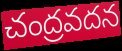
చంద్రవదన